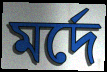
মর্দে